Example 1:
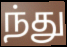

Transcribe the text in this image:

ந்து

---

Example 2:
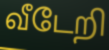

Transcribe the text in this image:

வீடேறி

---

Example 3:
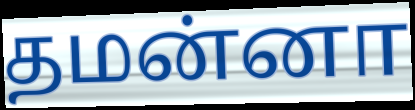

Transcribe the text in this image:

தமன்னா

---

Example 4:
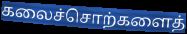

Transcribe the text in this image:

கலைச்சொற்களைத்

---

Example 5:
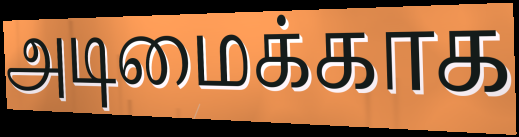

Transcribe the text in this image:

அடிமைக்காக